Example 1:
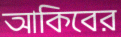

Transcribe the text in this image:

আকিবের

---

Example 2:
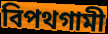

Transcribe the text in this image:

বিপথগামী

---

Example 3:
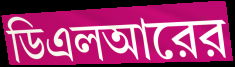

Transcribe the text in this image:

ডিএলআরের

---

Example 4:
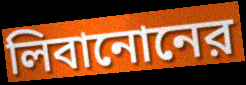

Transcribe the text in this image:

লিবানোনের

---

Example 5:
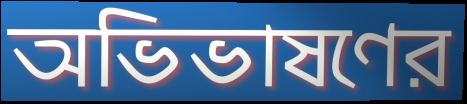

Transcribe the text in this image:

অভিভাষণের